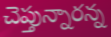
చెప్తున్నారన్న